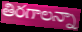
తిరగాలన్నా